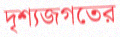
দৃশ্যজগতের